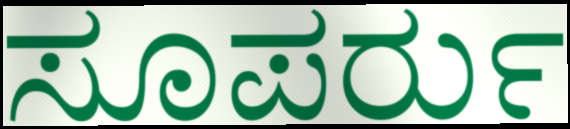
ಸೂಪರ್ರು